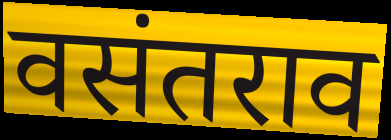
वसंतराव